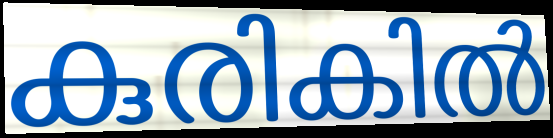
കുരികിൽ